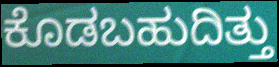
ಕೊಡಬಹುದಿತ್ತು